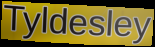
Tyldesley